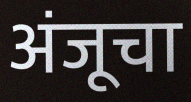
अंजूचा